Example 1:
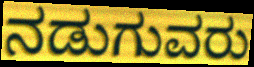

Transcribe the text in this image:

ನಡುಗುವರು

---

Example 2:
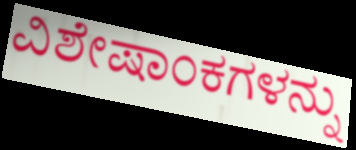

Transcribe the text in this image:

ವಿಶೇಷಾಂಕಗಳನ್ನು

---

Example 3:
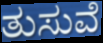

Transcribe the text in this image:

ತುಸುವೆ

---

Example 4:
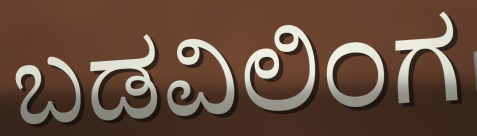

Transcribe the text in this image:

ಬಡವಿಲಿಂಗ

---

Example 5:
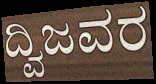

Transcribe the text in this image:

ದ್ವಿಜವರ